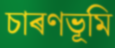
চাৰণভূমি